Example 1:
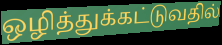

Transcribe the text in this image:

ஒழித்துக்கட்டுவதில்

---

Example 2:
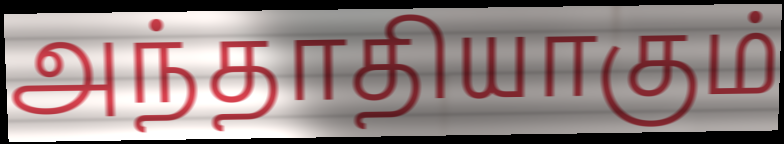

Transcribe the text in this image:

அந்தாதியாகும்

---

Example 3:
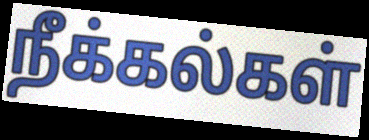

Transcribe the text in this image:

நீக்கல்கள்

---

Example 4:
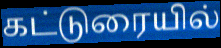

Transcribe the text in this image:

கட்டுரையில்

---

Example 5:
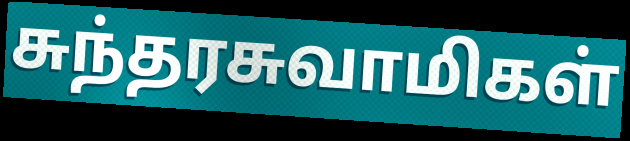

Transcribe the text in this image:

சுந்தரசுவாமிகள்